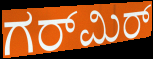
ಗರ್‌ಮಿರ್